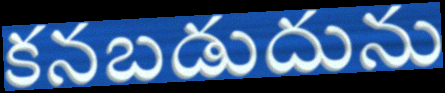
కనబడుదును